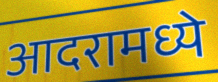
आदरामध्ये